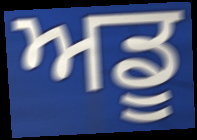
ਅਡੂ